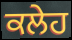
ਕਲੇਹ